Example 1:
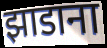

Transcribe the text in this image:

झाडाना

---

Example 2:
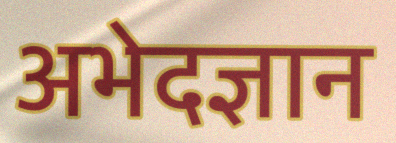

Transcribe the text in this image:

अभेदज्ञान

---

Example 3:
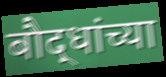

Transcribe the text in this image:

बौद्धांच्या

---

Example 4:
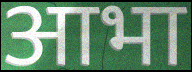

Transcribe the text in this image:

आभा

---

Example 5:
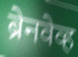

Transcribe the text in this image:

ब्रेनवेव्ह